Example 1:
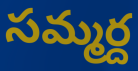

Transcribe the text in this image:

సమ్మర్ద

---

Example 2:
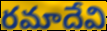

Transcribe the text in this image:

రమాదేవి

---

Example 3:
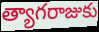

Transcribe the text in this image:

త్యాగరాజుకు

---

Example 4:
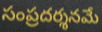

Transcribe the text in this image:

సంప్రదర్శనమే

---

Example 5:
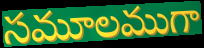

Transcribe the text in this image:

సమూలముగా